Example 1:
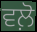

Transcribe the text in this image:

ਵਲ਼ੋ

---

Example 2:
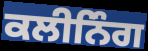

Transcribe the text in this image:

ਕਲੀਨਿੰਗ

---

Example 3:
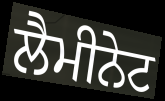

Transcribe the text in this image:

ਲੈਮੀਨੇਟ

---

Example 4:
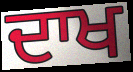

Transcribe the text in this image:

ਦਾਖ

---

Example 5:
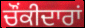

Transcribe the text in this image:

ਚੌਂਕੀਦਾਰਾਂ